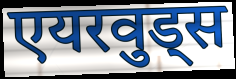
एयरवुड्स